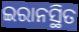
ଇରାନସ୍ଥିତ